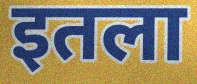
इतला